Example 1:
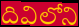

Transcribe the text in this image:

దివిలోని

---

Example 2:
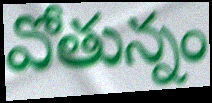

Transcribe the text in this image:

వోతున్నం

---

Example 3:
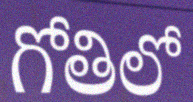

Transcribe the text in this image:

గోతిలో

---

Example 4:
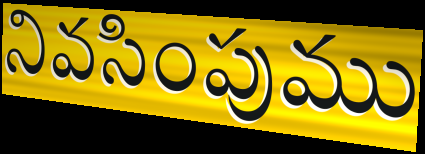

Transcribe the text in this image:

నివసింపుము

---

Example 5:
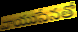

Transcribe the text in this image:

వాయుసేనతో